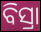
ବିସ୍ରା